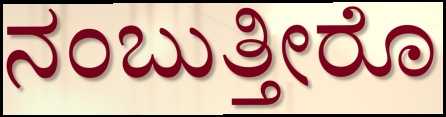
ನಂಬುತ್ತೀರೊ